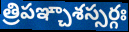
త్రిపఞ్చాశస్సర్గః